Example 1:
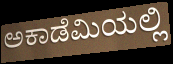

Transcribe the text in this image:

ಅಕಾಡೆಮಿಯಲ್ಲಿ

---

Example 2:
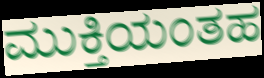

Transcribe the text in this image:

ಮುಕ್ತಿಯಂತಹ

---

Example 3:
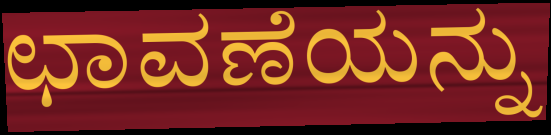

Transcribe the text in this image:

ಛಾವಣೆಯನ್ನು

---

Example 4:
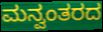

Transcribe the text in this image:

ಮನ್ವಂತರದ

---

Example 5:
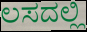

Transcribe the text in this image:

ಲಸದಲ್ಲಿ